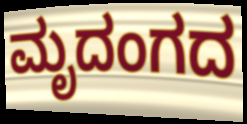
ಮೃದಂಗದ